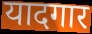
यादगार